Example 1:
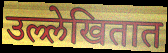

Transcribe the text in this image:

उल्लेखितात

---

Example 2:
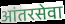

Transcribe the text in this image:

आंतरसेवा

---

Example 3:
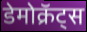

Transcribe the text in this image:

डेमोक्रॅट्स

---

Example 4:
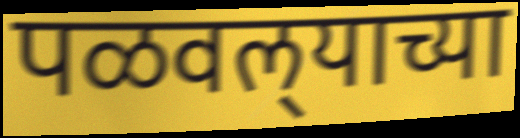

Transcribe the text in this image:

पळवल्याच्या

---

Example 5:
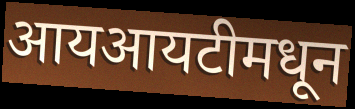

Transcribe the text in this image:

आयआयटीमधून